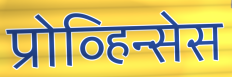
प्रोव्हिन्सेस